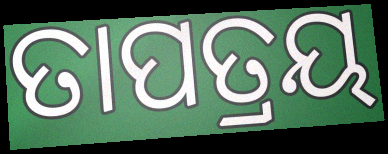
ତାପତ୍ରୟ